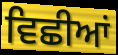
ਵਿਛੀਆਂ